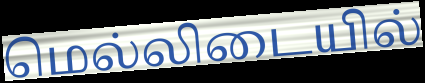
மெல்லிடையில்